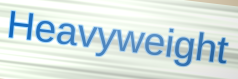
Heavyweight